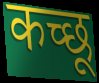
कच्छू